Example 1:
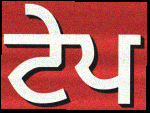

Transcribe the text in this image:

ਟੇਪ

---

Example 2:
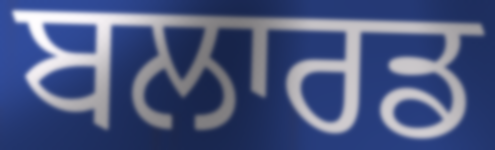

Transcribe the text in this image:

ਬਲਾਰਡ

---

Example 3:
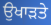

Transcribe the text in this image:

ਉਖਾੜਤੇ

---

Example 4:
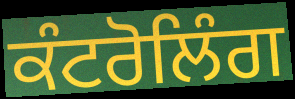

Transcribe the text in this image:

ਕੰਟਰੋਲਿੰਗ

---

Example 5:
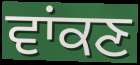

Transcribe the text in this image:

ਵਾਂਕਣ